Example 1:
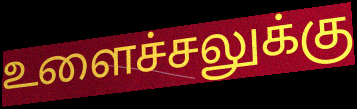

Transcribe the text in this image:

உளைச்சலுக்கு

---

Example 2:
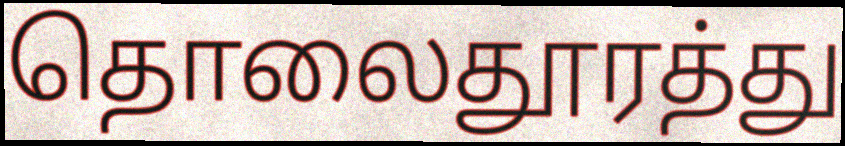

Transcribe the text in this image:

தொலைதூரத்து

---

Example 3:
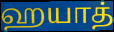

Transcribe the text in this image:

ஹயாத்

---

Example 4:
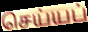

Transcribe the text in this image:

செய்யப்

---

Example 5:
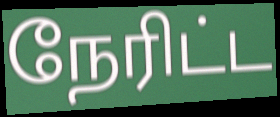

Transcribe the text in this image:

நேரிட்ட